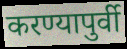
करण्यापुर्वी